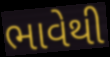
ભાવેથી